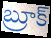
బ్రూక్